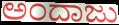
ಅಂದಾಜು